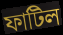
ফাটিল